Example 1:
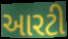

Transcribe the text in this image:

આરટી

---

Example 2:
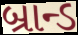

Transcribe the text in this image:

બ્રાન્ડ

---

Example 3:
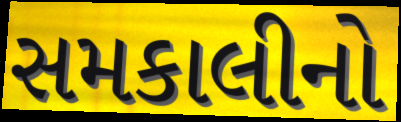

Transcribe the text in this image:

સમકાલીનો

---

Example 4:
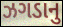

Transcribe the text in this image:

ઝગડાનુ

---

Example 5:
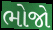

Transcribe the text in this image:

ભોજો